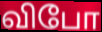
விபோ